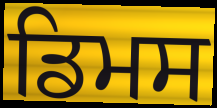
ਡਿਮਸ